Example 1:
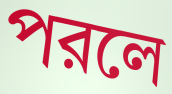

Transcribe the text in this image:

পরলে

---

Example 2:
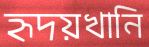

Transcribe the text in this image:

হৃদয়খানি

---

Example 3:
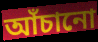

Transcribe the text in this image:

আঁচানো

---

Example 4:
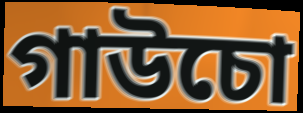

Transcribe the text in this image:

গাউচো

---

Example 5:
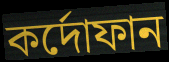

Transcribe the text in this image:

কর্দোফান